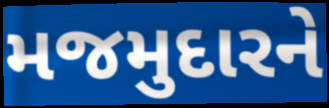
મજમુદારને